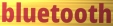
bluetooth